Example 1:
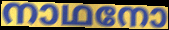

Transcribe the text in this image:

നാഥനോ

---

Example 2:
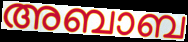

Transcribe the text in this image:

അബാബ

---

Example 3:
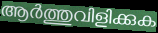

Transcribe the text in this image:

ആർത്തുവിളിക്കുക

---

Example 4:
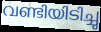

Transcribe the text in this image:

വണ്ടിയിടിച്ചു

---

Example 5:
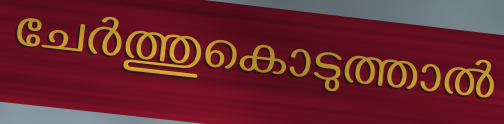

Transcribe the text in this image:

ചേർത്തുകൊടുത്താൽ